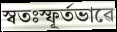
স্বতঃস্ফূৰ্তভাৱে